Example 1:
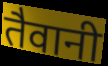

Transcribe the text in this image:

तैवानी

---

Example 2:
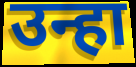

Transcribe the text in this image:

उन्हा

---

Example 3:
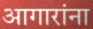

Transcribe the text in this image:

आगारांना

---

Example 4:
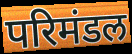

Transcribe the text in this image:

परिमंडल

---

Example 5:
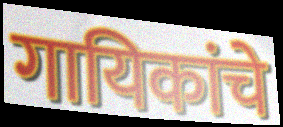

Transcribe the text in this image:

गायिकांचे